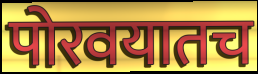
पोरवयातच